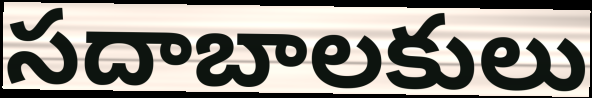
సదాబాలకులు